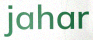
jahar